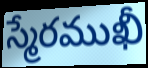
స్మేరముఖీ